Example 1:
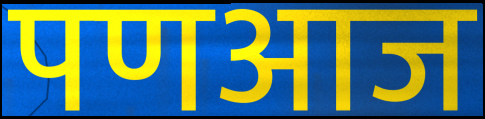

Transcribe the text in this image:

पणआज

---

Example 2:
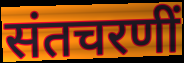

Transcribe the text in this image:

संतचरणीं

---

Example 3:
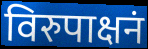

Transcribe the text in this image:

विरुपाक्षनं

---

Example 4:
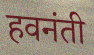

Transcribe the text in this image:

हवनंती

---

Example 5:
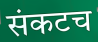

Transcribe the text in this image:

संकटच